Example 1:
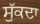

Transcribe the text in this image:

ਸੁੱਕਦਾ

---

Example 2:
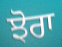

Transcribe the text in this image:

ਝੋਰਾ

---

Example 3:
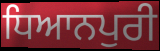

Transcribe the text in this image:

ਧਿਆਨਪੁਰੀ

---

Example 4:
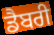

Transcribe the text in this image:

ਡੈਬਰੀ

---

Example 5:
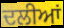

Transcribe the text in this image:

ਦਲੀਆਂ